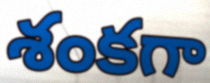
శంకగా